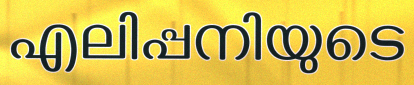
എലിപ്പനിയുടെ